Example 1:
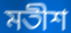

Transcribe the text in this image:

মতীশ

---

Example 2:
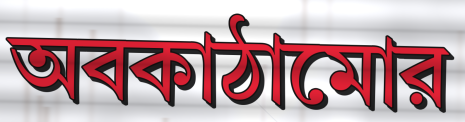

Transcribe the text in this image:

অবকাঠামোর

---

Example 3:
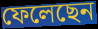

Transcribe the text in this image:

ফেলেছেন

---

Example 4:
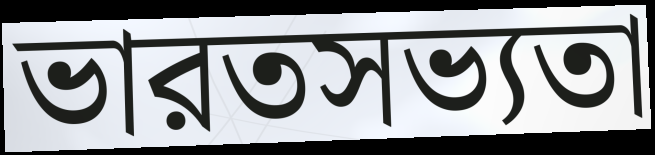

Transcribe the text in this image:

ভারতসভ্যতা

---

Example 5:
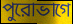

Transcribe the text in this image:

পুরোভাগে